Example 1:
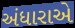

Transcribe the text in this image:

અંધારાએ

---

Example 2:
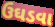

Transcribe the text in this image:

ઉઘડવા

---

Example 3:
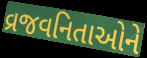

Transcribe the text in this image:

વ્રજવનિતાઓને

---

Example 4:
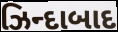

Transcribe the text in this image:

ઝિન્દાબાદ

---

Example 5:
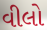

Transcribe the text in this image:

વીલો